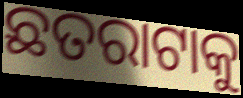
ଛତରାଟାକୁ